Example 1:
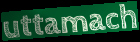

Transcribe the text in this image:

uttamach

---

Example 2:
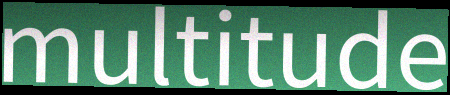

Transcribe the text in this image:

multitude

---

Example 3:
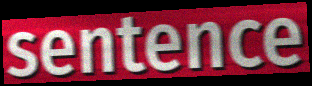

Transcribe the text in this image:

sentence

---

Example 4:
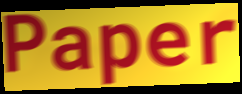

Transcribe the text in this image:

Paper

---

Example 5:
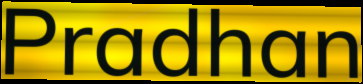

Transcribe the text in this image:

Pradhan